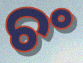
ଚଂ